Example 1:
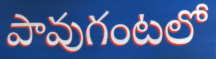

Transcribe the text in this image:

పావుగంటలో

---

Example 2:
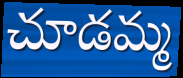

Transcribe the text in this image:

చూడమ్మ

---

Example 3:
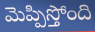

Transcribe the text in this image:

మెప్పిస్తోంది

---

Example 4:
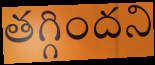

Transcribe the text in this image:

తగ్గిందని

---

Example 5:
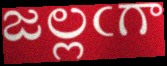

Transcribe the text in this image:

జల్లఁగా